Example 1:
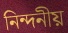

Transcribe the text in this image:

নিন্দনীয়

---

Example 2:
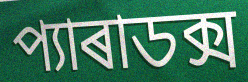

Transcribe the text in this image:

প্যাৰাডক্স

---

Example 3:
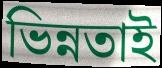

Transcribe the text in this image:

ভিন্নতাই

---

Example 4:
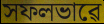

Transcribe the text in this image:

সফলভাৱে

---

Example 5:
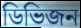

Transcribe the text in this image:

ডিভিজন